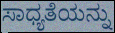
ಸಾಧ್ಯತೆಯನ್ನು